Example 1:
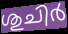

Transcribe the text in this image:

ശുചിർ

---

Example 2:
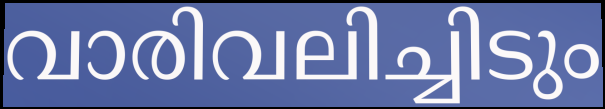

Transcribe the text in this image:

വാരിവലിച്ചിടും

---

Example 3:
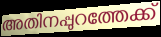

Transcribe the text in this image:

അതിനപ്പുറത്തേക്ക്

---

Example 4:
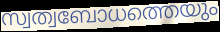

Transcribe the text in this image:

സ്വത്വബോധത്തെയും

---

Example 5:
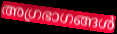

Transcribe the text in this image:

അഗ്രഭാഗങ്ങൾ